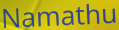
Namathu